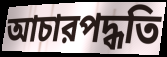
আচারপদ্ধতি